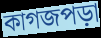
কাগজপড়া